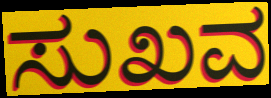
ಸುಖವ